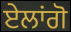
ਏਲਾਂਗੋ